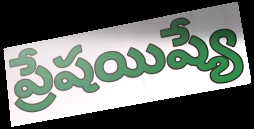
ప్రేషయిష్యే